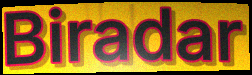
Biradar